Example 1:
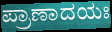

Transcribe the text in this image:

ಪ್ರಾಣಾದಯಃ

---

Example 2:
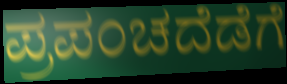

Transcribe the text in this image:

ಪ್ರಪಂಚದೆಡೆಗೆ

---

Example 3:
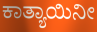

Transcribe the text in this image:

ಕಾತ್ಯಾಯಿನೀ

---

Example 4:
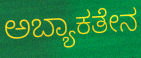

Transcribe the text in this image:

ಅಬ್ಯಾಕತೇನ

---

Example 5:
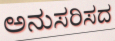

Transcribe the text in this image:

ಅನುಸರಿಸದ